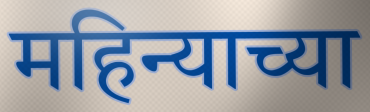
महिन्याच्या